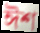
ঈশ